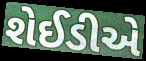
શેઈડીએ